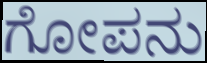
ಗೋಪನು